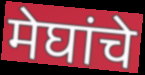
मेघांचे